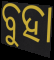
ବୁହା